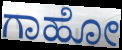
ಗಾಹೋ